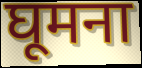
घूमना